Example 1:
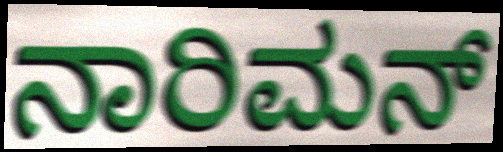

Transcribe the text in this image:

ನಾರಿಮನ್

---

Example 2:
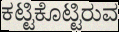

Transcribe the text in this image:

ಕಟ್ಟಿಕೊಟ್ಟಿರುವ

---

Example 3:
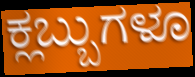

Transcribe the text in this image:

ಕ್ಲಬ್ಬುಗಳೂ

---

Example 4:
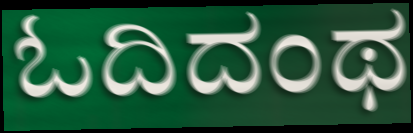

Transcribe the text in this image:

ಓದಿದಂಥ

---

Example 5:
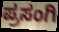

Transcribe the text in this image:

ಪ್ರಸಂಗಿ